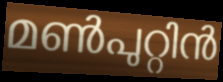
മൺപുറ്റിൻ